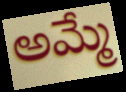
అమ్మే